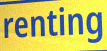
renting